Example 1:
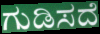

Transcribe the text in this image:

ಗುಡಿಸದೆ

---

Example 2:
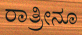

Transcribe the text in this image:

ರಾತ್ರೀನೂ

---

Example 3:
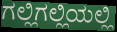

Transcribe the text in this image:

ಗಲ್ಲಿಗಲ್ಲಿಯಲ್ಲಿ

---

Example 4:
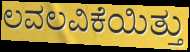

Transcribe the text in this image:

ಲವಲವಿಕೆಯಿತ್ತು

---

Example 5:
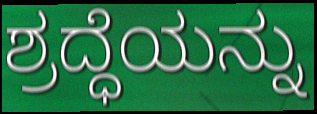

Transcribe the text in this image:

ಶ್ರದ್ಧೆಯನ್ನು